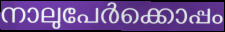
നാലുപേർക്കൊപ്പം